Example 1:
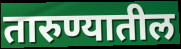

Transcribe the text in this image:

तारुण्यातील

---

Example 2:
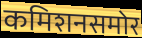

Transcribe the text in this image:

कमिशनसमोर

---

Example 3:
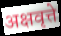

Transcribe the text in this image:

अक्षवृत्ते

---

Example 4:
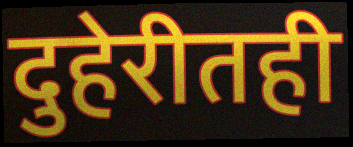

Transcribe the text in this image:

दुहेरीतही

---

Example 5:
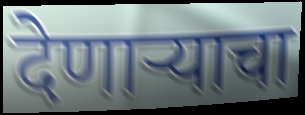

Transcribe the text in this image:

देणार्‍याचा